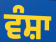
ਵੰਸ਼ਾ